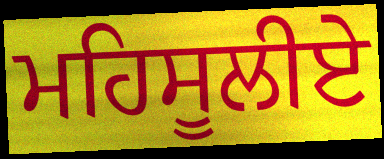
ਮਹਿਸੂਲੀਏ